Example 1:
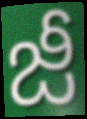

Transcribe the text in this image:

జీ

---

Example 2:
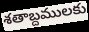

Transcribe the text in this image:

శతాబ్దములకు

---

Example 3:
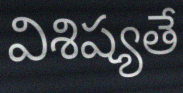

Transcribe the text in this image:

విశిష్యతే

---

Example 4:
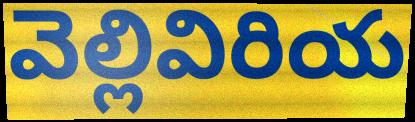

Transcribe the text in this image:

వెల్లివిరియ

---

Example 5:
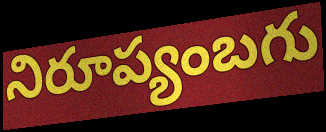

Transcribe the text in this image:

నిరూప్యంబగు